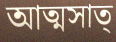
আত্মসাত্